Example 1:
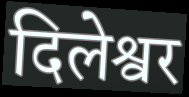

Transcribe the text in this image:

दिलेश्वर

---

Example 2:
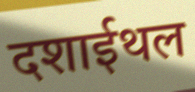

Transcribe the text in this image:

दशाईथल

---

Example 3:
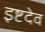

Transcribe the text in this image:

इष्टदेव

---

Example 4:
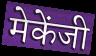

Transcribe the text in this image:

मेकेंजी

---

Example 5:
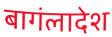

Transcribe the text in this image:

बागंलादेश